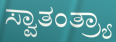
ಸ್ವಾತಂತ್ರ್ಯಾ